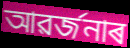
আৱৰ্জনাৰ